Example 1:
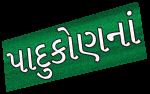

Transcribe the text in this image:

પાદુકોણનાં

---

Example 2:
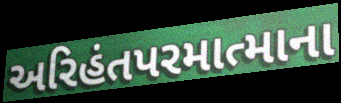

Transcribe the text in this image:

અરિહંતપરમાત્માના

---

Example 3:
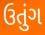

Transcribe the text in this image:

ઉતુંગ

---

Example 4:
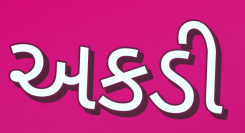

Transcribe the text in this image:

અકડી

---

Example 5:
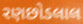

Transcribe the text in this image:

રણછોડલાલ